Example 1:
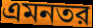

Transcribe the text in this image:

এমনতর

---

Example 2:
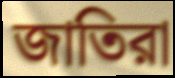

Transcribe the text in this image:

জাতিরা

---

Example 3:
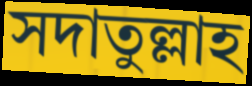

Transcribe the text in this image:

সদাতুল্লাহ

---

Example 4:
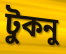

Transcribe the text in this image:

টুকনু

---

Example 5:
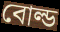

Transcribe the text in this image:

বোল্ড